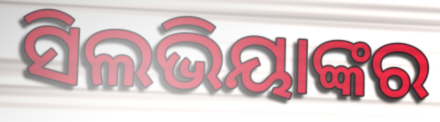
ସିଲଭିୟାଙ୍କର